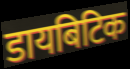
डायबिटिक